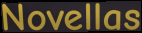
Novellas